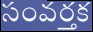
సంవర్తక